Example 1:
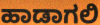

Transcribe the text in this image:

ಹಾಡಾಗಲಿ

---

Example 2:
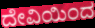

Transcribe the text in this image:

ದೇವಿಯಿಂದ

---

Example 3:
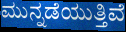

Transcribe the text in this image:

ಮುನ್ನಡೆಯುತ್ತಿವೆ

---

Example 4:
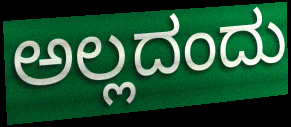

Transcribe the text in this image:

ಅಲ್ಲದಂದು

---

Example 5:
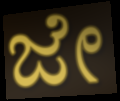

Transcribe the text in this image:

ಜೇ